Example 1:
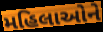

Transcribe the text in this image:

મહિલાઓને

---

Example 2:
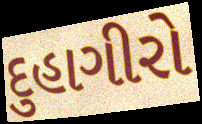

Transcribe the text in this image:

દુહાગીરો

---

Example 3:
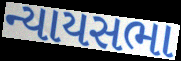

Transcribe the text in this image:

ન્યાયસભા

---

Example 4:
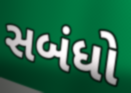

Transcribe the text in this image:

સબંધો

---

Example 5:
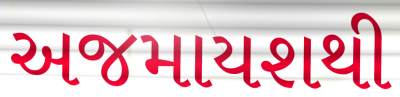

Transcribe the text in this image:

અજમાયશથી